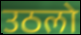
उठलो